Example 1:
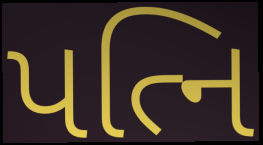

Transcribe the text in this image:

પત્નિ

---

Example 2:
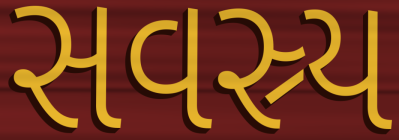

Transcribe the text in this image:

સવસ્ર્ય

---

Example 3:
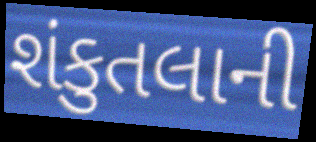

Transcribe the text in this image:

શંકુતલાની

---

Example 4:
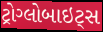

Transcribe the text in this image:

ટ્રોગ્લોબાઇટ્સ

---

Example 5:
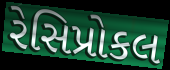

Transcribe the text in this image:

રેસિપ્રોકલ